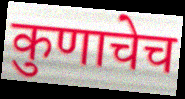
कुणाचेच